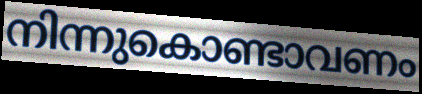
നിന്നുകൊണ്ടാവണം